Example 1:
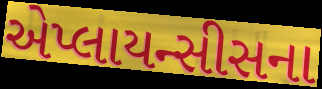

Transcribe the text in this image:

એપ્લાયન્સીસના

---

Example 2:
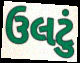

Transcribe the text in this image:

ઉલટું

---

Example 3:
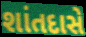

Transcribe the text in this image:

શાંતદાસે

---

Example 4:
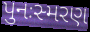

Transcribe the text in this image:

પુનઃસ્મરણ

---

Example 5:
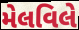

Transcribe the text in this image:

મેલવિલે